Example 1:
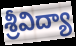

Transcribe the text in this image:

శ్రీవిద్యా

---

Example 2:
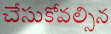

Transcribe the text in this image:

చేసుకోవల్సిన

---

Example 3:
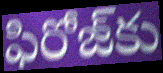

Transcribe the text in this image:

ఫిరోజ్‌కు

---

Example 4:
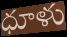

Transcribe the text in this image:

ధూళు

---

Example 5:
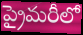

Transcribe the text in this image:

ప్రైమరీలో